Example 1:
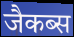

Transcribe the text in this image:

जैकब्स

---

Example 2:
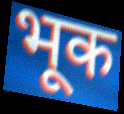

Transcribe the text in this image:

भूक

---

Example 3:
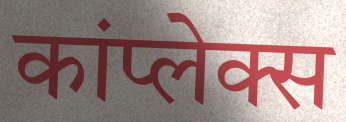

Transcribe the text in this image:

कांप्लेक्स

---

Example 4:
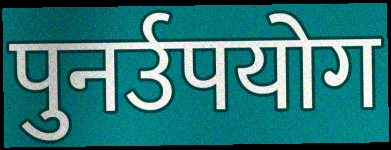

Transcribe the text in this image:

पुनर्उपयोग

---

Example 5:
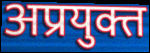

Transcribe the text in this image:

अप्रयुक्त